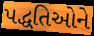
પદ્ધતિઓને